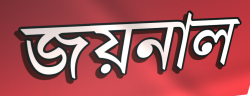
জয়নাল